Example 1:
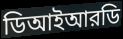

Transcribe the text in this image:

ডিআইআরডি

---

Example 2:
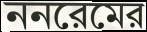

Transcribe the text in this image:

ননরেমের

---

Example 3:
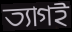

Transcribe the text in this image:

ত্যাগই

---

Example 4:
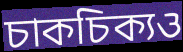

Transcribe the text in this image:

চাকচিক্যও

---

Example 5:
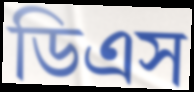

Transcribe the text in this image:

ডিএস